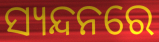
ସ୍ୟନ୍ଦନରେ